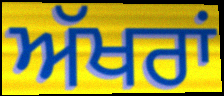
ਅੱਖਰਾਂ